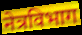
नेत्रविभाग